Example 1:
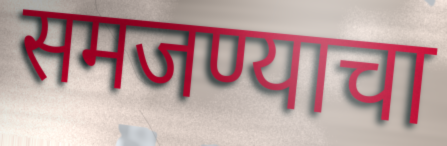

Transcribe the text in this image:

समजण्याचा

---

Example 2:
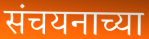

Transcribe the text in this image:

संचयनाच्या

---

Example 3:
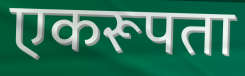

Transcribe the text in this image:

एकरूपता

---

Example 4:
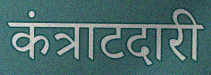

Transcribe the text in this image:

कंत्राटदारी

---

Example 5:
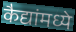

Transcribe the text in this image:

कैद्यांमध्ये